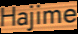
Hajime